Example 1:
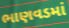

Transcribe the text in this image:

ભાણવડમાં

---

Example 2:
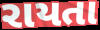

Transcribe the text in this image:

રાયતા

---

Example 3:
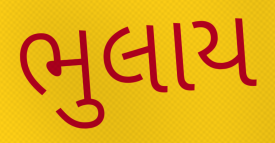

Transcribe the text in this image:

ભુલાય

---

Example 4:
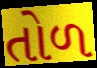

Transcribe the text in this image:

તોળ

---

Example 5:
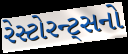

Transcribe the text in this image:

રેસ્ટોરન્ટ્સનો